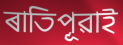
ৰাতিপূৱাই